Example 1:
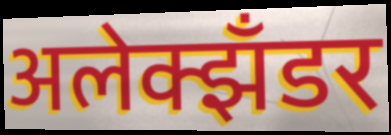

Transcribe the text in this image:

अलेक्झँडर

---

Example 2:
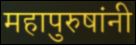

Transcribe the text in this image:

महापुरुषांनी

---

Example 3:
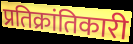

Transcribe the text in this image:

प्रतिक्रांतिकारी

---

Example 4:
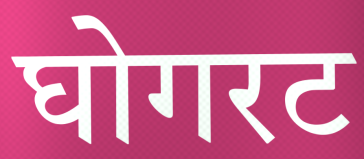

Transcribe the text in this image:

घोगरट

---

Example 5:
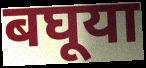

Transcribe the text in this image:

बघूया